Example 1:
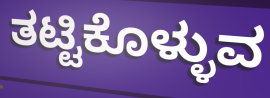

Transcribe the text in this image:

ತಟ್ಟಿಕೊಳ್ಳುವ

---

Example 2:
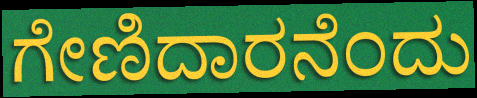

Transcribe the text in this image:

ಗೇಣಿದಾರನೆಂದು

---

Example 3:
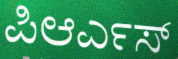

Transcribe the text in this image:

ಪಿಆರ್ಎಸ್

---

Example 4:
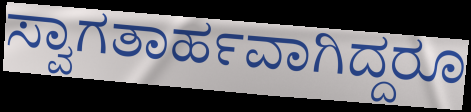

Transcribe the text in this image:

ಸ್ವಾಗತಾರ್ಹವಾಗಿದ್ದರೂ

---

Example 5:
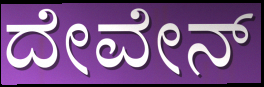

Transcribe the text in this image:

ದೇವೇನ್